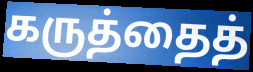
கருத்தைத்